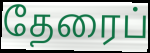
தேரைப்